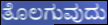
ತೊಲಗುವುದು